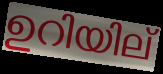
ഉറിയില്